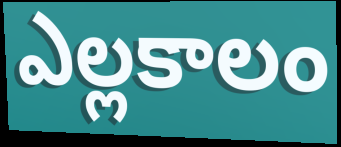
ఎల్లకాలం